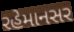
રહેમાનસર